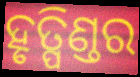
ହୃତ୍ପିଣ୍ଡର